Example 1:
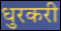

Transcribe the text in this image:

धुरकरी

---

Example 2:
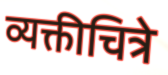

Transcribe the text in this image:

व्यक्तीचित्रे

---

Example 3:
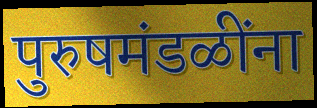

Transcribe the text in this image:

पुरुषमंडळींना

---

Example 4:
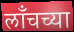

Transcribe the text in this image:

लाँचच्या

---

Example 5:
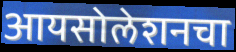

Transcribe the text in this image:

आयसोलेशनचा